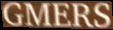
GMERS